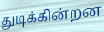
துடிக்கின்றன